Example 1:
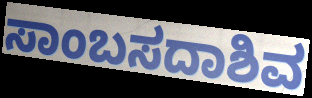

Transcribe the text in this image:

ಸಾಂಬಸದಾಶಿವ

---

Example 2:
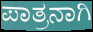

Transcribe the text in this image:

ಪಾತ್ರನಾಗಿ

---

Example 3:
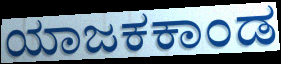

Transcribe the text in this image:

ಯಾಜಕಕಾಂಡ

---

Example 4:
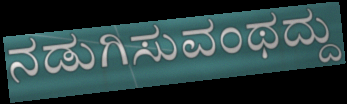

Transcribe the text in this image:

ನಡುಗಿಸುವಂಥದ್ದು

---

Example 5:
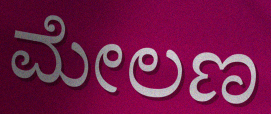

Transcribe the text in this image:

ಮೇಲಣ